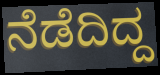
ನೆಡೆದಿದ್ದ